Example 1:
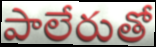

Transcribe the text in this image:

పాలేరుతో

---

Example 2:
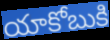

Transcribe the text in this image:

యాకోబుకి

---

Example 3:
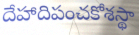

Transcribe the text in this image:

దేహాదిపంచకోశస్థా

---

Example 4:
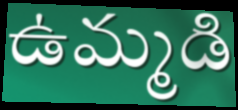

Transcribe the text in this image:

ఉమ్మడి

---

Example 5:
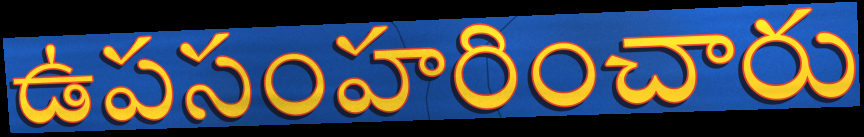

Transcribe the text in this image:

ఉపసంహరించారు